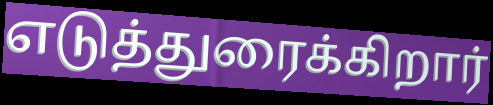
எடுத்துரைக்கிறார்